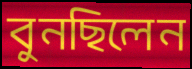
বুনছিলেন